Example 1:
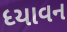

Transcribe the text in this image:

ધ્યાવન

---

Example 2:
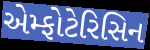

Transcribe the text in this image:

એમ્ફોટેરિસિન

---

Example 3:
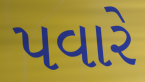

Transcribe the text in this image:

પવારે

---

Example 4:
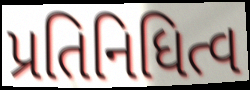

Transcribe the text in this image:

પ્રતિનિધિત્વ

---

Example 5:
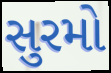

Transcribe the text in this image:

સુરમો